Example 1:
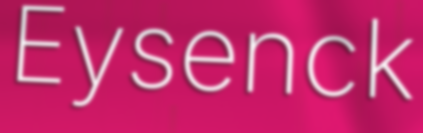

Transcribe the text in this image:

Eysenck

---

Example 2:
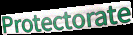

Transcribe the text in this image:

Protectorate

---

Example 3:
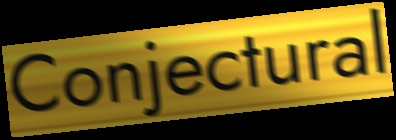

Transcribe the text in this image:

Conjectural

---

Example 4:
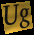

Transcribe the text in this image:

Ug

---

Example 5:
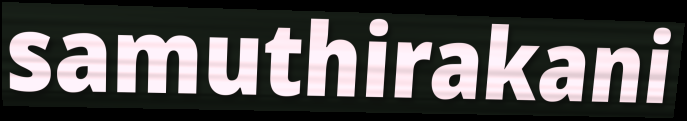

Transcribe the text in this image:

samuthirakani